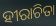
ହୀରାଚିତା